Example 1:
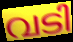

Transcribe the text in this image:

വടി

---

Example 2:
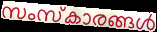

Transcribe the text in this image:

സംസ്കാരങ്ങൾ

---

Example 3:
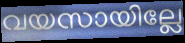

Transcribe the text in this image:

വയസായില്ലേ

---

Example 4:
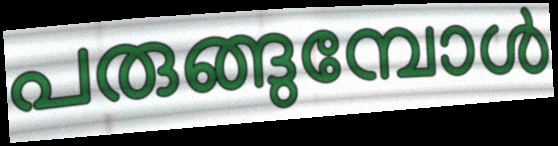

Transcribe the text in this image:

പരുങ്ങുമ്പോൾ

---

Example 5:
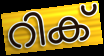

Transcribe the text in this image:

റിക്